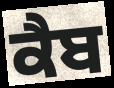
ਕੈਬ